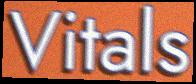
Vitals